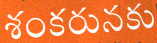
శంకరునకు